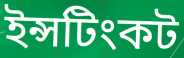
ইন্সটিংকট